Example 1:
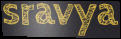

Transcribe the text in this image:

sravya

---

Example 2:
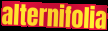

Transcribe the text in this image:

alternifolia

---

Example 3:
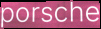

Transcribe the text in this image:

porsche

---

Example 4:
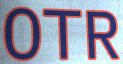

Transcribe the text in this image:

OTR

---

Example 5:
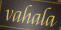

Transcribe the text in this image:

vahala